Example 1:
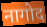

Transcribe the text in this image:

नागोद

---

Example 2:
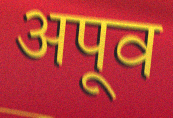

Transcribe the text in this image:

अपूव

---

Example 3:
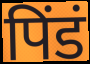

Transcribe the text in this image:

पिंडं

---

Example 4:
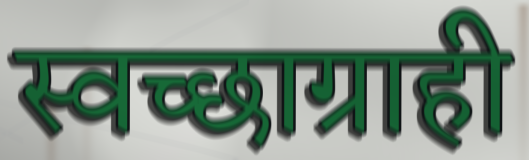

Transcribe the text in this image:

स्वच्छाग्राही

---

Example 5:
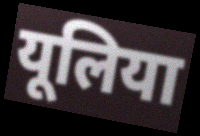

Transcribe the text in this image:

यूलिया